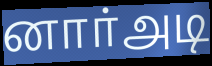
னார்அடி